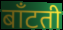
बाँटती